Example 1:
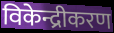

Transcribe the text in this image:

विकेन्द्रीकरण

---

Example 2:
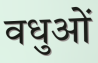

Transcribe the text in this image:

वधुओं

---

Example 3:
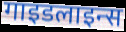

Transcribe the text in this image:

गाइडलाइन्स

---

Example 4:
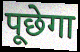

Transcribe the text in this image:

पूछेगा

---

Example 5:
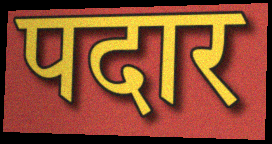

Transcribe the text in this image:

पदार